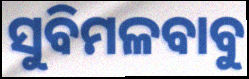
ସୁବିମଳବାବୁ